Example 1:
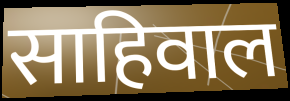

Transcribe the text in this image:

साहिवाल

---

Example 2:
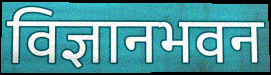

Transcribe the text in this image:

विज्ञानभवन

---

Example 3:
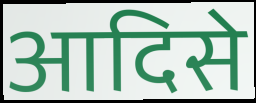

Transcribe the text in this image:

आदिसे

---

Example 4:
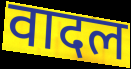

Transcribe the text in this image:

वादल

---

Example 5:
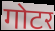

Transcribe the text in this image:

गोटर